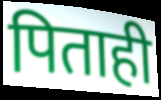
पिताही